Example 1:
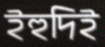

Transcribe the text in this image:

ইহুদিই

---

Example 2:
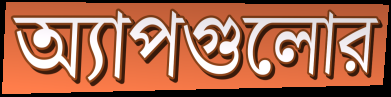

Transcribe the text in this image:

অ্যাপগুলোর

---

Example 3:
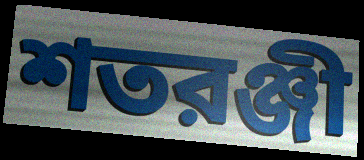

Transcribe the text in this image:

শতরঞ্জী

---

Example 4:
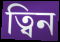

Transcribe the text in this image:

ত্বিন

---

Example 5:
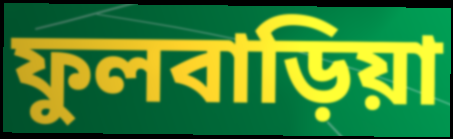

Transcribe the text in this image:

ফুলবাড়িয়া